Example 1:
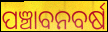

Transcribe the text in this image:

ପଞ୍ଚାବନବର୍ଷ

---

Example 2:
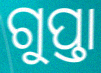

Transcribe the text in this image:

ଗୁପ୍ତା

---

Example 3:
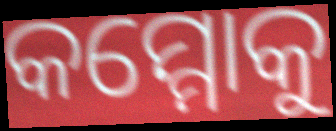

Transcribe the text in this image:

କମ୍ମୋକୁ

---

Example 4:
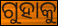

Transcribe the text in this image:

ଗୁହାକୁ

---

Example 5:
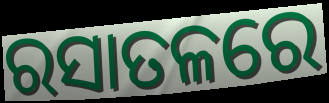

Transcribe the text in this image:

ରସାତଳରେ